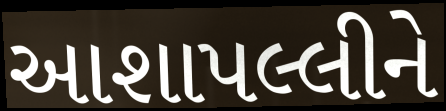
આશાપલ્લીને